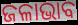
ଜଳାଭାବ